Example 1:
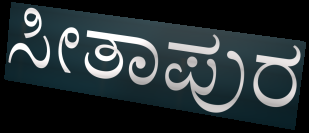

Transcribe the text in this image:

ಸೀತಾಪುರ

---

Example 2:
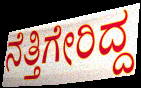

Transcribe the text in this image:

ನೆತ್ತಿಗೇರಿದ್ದ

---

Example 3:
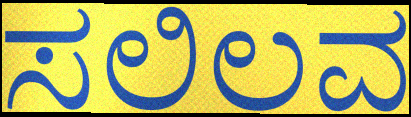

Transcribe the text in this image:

ಸಲಿಲವ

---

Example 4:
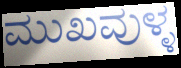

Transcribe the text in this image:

ಮುಖವುಳ್ಳ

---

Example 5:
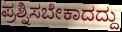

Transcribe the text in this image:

ಪ್ರಶ್ನಿಸಬೇಕಾದದ್ದು